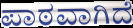
ಪಾಠವಾಗಿದೆ